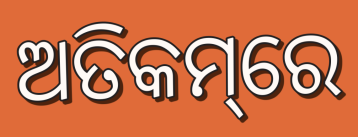
ଅତିକମ୍‌ରେ